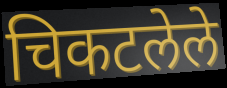
चिकटलेले